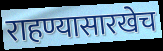
राहण्यासारखेच